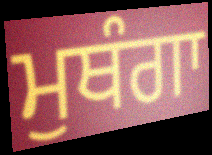
ਮੁਥੰਗਾ